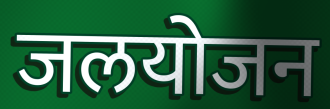
जलयोजन